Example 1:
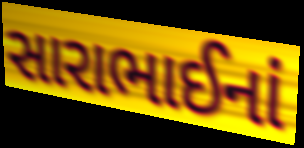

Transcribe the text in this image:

સારાભાઈનાં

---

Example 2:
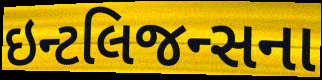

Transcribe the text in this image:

ઇન્ટલિજન્સના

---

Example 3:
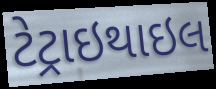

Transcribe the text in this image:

ટેટ્રાઇથાઇલ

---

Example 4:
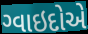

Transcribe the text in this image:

ગ્વાઇદોએ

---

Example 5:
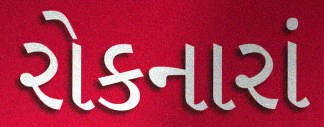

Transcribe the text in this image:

રોકનારાં